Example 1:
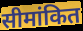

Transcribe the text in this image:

सीमांकित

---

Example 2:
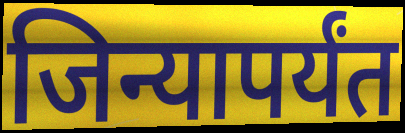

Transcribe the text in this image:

जिन्यापर्यंत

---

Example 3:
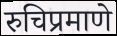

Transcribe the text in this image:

रुचिप्रमाणे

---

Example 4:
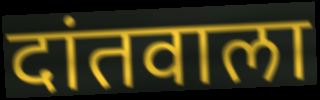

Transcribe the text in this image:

दांतवाला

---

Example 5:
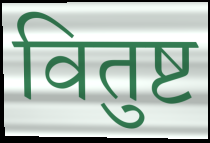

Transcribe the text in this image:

वितुष्ट